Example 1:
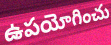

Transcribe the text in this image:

ఉపయోగించు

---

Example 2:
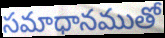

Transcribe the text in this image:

సమాధానముతో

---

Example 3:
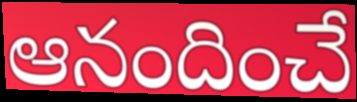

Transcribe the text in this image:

ఆనందించే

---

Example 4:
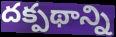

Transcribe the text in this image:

దక్పథాన్ని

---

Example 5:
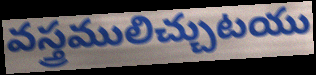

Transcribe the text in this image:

వస్త్రములిచ్చుటయు